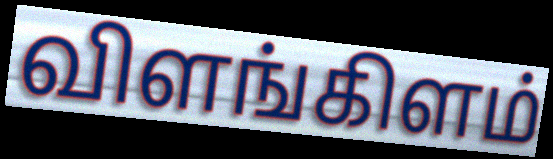
விளங்கிளம்